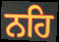
ਨਹਿ